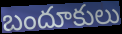
బందూకులు